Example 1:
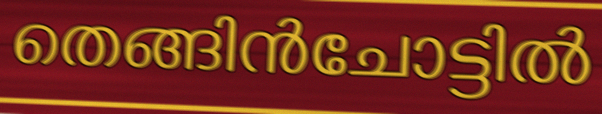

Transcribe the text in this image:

തെങ്ങിൻചോട്ടിൽ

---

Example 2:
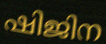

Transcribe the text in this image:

ഷിജിന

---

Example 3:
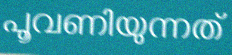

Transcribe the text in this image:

പൂവണിയുന്നത്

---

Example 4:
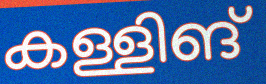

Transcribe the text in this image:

കള്ളിങ്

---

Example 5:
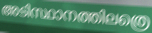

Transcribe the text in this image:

അടിസ്ഥാനത്തിലത്രെ